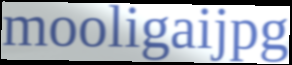
mooligaijpg